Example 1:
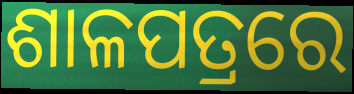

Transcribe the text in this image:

ଶାଳପତ୍ରରେ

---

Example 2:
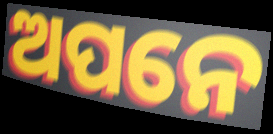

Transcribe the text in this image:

ଅପନେ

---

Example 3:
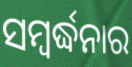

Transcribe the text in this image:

ସମ୍ବର୍ଦ୍ଧନାର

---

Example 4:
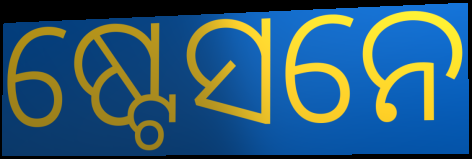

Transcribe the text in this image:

ଷ୍ଟେସନେ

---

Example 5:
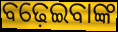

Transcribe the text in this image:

ବଢ଼େଇବାଙ୍କ